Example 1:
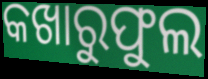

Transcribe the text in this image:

କଖାରୁଫୁଲ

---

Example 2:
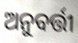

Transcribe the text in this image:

ଅନୁବର୍ତ୍ତୀ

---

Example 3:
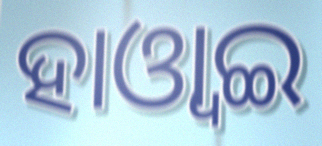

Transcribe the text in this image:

ହାଓ୍ୱାଇ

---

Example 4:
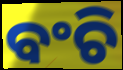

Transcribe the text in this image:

ବଂଚି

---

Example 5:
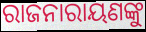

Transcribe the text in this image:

ରାଜନାରାୟଣଙ୍କୁ